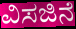
ವಿಸಜಿನೆ